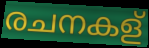
രചനകള്